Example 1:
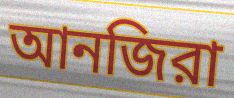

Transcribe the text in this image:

আনজিরা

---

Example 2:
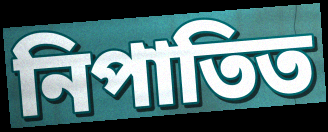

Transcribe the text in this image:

নিপাতিত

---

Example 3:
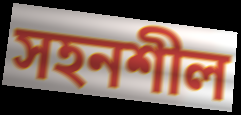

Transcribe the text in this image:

সহনশীল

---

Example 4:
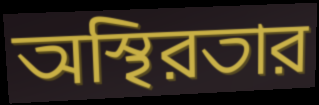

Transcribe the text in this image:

অস্থিরতার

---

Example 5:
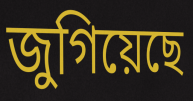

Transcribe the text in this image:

জুগিয়েছে